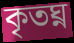
কৃতঘ্ন